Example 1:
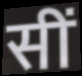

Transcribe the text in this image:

सीं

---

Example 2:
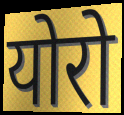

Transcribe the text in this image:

योरो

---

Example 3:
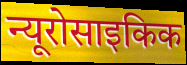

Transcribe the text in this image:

न्यूरोसाइकिक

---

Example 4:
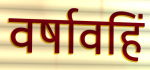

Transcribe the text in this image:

वर्षावहिं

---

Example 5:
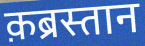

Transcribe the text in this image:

क़ब्रस्तान